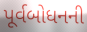
પૂર્વબોધનની